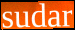
sudar